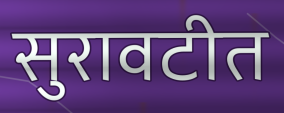
सुरावटीत